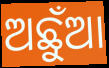
ଅଛୁଁଆ